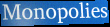
Monopolies